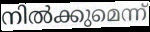
നിൽക്കുമെന്ന്